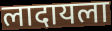
लादायला